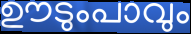
ഊടുംപാവും